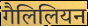
गैलिलियन